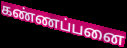
கண்ணப்பனை